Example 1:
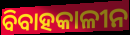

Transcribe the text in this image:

ବିବାହକାଳୀନ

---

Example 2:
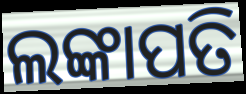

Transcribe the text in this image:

ଲଙ୍କାପତି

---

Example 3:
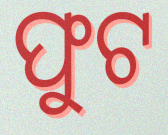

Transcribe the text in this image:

ଫୁଟ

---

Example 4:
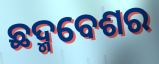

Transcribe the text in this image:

ଛଦ୍ମବେଶର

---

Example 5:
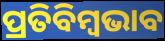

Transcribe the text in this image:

ପ୍ରତିବିମ୍ବଭାବ